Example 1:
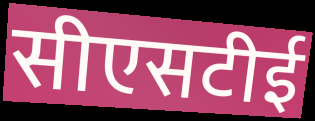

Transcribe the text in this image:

सीएसटीई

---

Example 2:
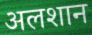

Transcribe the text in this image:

अलशान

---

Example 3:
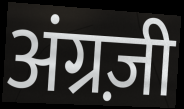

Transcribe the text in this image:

अंग्रज़ी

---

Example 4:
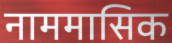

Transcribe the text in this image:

नाममासिक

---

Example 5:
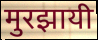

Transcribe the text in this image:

मुरझायी